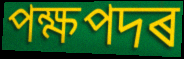
পক্ষপদৰ